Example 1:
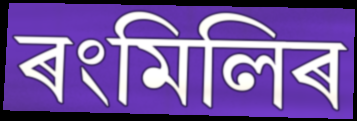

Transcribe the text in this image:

ৰংমিলিৰ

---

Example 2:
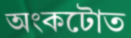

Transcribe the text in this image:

অংকটোত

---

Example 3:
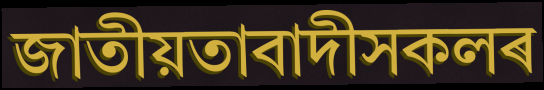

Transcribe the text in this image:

জাতীয়তাবাদীসকলৰ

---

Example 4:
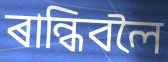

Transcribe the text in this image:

ৰান্ধিবলৈ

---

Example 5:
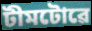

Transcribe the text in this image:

টীমটোৱে